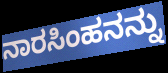
ನಾರಸಿಂಹನನ್ನು